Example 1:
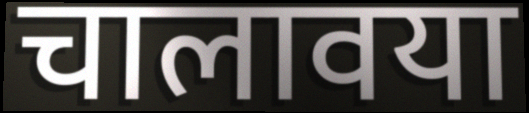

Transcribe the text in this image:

चालावया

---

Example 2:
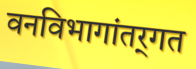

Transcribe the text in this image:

वनविभागांतर्गत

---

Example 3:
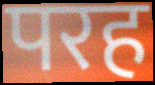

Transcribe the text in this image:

परह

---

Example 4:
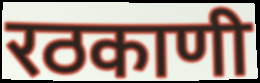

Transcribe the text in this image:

रठकाणी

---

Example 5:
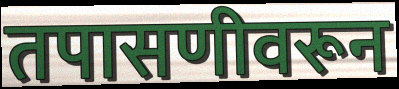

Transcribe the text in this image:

तपासणीवरून